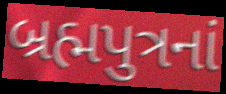
બ્રહ્મપુત્રનાં